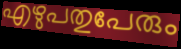
എഴുപതുപേരും